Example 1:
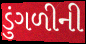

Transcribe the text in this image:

ડુંગળીની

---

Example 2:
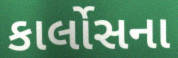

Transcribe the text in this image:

કાર્લોસના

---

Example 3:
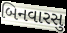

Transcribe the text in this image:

બિનવારસુ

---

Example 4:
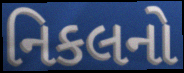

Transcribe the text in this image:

નિકલનો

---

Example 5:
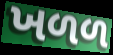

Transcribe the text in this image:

ખળળ